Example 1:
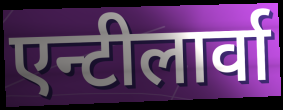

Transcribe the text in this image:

एन्टीलार्वा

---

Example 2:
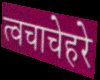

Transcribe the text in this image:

त्वचाचेहरे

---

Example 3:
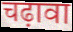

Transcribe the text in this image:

चढ़ावा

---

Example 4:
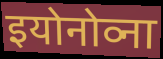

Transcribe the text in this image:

इयोनोव्ना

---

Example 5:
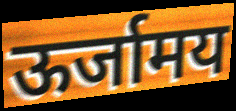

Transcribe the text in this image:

ऊर्जामय